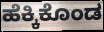
ಹೆಕ್ಕಿಕೊಂಡ